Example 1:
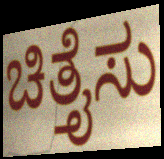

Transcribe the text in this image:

ಚಿತ್ತೈಸು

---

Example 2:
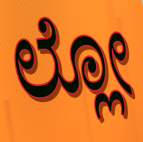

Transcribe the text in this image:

ಲ್ಲೋ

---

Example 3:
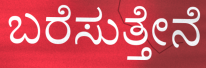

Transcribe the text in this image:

ಬರೆಸುತ್ತೇನೆ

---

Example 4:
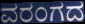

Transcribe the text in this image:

ವರಂಗದ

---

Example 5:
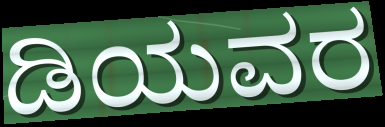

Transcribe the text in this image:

ಡಿಯವರ